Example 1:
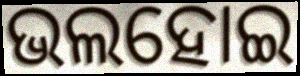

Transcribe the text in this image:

ଭଲହୋଇ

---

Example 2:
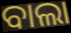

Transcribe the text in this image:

ବାଲା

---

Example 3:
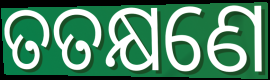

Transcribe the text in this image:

ତତକ୍ଷଣେ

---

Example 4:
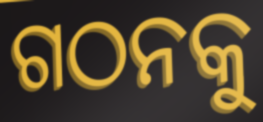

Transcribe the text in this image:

ଗଠନକୁ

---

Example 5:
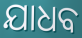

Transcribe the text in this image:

ଯାଧବ